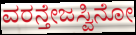
ವರನ್ತೇಜಸ್ವಿನೋ